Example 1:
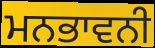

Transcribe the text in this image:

ਮਨਭਾਵਨੀ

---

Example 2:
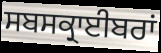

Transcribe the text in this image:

ਸਬਸਕ੍ਰਾਈਬਰਾਂ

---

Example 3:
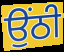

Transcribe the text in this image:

ਉਂਠੀ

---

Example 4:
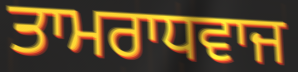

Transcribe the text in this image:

ਤਾਮਰਾਧਵਾਜ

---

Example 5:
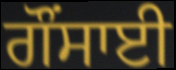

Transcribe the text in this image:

ਗੌਂਸਾਈ